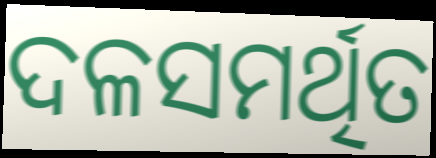
ଦଳସମର୍ଥିତ